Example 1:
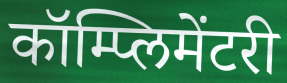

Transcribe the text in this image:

कॉम्प्लिमेंटरी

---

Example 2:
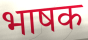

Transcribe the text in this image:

भाषक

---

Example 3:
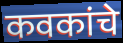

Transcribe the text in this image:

कवकांचे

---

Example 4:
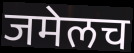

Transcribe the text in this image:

जमेलच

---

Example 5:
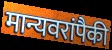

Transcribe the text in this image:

मान्यवरांपैकी